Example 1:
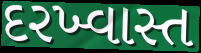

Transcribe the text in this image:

દરખ્વાસ્ત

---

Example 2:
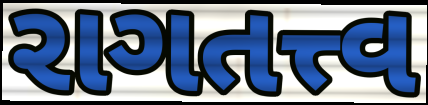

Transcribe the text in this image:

રાગતત્ત્વ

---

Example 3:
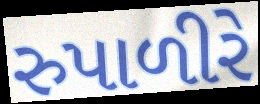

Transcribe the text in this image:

રુપાળીરે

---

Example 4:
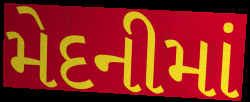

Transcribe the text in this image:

મેદનીમાં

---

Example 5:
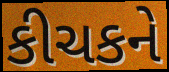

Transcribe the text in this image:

કીચકને